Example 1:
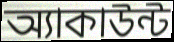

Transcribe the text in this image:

অ্যাকাউন্ট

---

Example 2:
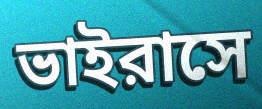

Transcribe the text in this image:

ভাইরাসে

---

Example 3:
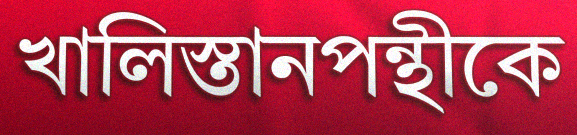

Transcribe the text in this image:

খালিস্তানপন্থীকে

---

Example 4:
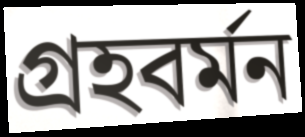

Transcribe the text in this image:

গ্রহবর্মন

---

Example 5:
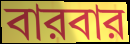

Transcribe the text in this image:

বারবার